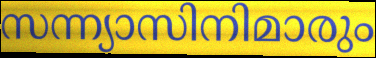
സന്ന്യാസിനിമാരും